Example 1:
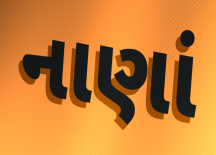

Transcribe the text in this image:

નાણાં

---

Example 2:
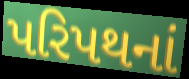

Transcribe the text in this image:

પરિપથનાં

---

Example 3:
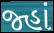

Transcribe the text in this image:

જ્હાં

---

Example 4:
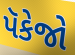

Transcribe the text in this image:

પૅકેજો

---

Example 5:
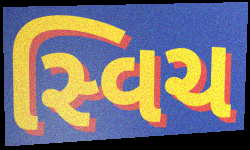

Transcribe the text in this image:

સ્વિચ